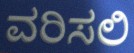
ವರಿಸಲಿ